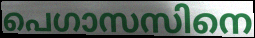
പെഗാസസിനെ